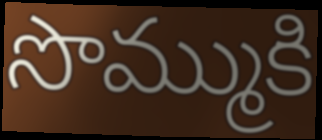
సొమ్ముకి